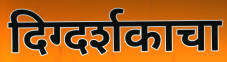
दिग्दर्शकाचा